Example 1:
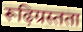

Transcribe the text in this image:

रूढ़िग्रस्तता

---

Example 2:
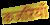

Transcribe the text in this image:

कजरियाँ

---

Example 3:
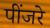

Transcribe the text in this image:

पींजरे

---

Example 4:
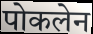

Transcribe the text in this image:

पोकलेन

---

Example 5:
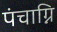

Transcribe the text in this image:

पंचाग्नि